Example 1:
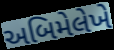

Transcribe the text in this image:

અબિમેલેખે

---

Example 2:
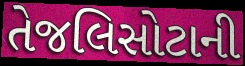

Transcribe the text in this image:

તેજલિસોટાની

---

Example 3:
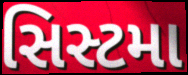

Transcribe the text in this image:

સિસ્ટમા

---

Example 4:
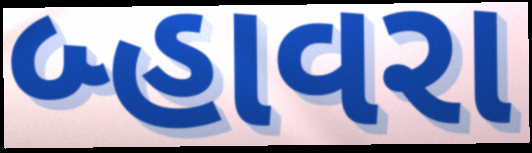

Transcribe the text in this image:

બ્હાવરા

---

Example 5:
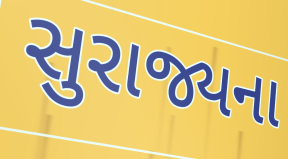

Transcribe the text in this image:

સુરાજ્યના